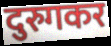
दुरुगकर